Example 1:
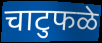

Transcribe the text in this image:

चाटुफळे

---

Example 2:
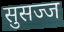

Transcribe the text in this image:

सुसज्ज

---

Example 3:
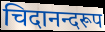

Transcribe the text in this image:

चिदानन्दरूप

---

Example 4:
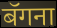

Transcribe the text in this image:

बॅगना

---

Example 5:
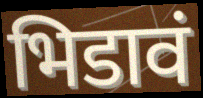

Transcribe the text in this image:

भिडावं